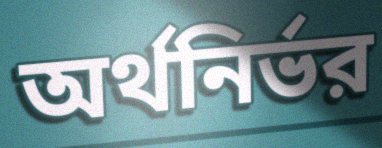
অর্থনির্ভর